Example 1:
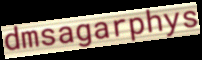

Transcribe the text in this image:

dmsagarphys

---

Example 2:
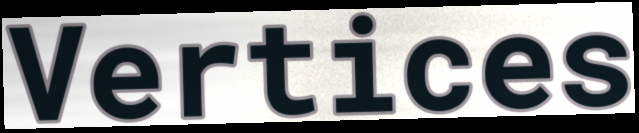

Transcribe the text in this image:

Vertices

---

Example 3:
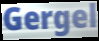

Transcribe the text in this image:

Gergel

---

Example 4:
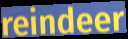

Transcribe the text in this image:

reindeer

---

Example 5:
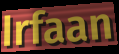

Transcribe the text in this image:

Irfaan